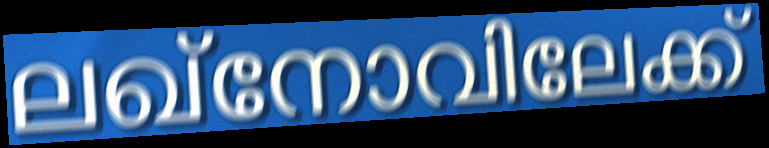
ലഖ്നോവിലേക്ക്